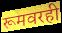
रूमवरही